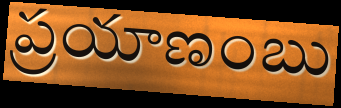
ప్రయాణంబు